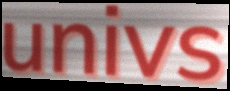
univs